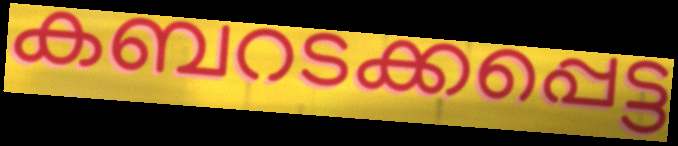
കബറടക്കപ്പെട്ട